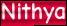
Nithya